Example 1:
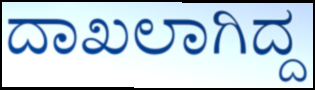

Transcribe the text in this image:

ದಾಖಲಾಗಿದ್ದ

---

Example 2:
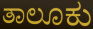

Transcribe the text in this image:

ತಾಲೂಕು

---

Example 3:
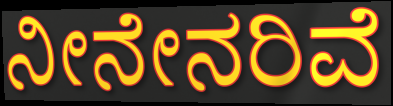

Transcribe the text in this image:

ನೀನೇನರಿವೆ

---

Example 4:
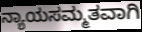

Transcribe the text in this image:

ನ್ಯಾಯಸಮ್ಮತವಾಗಿ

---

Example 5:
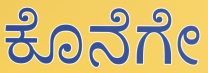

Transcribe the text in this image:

ಕೊನೆಗೇ